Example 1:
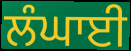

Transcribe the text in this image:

ਲੰਘਾਈ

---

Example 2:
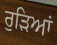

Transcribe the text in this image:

ਰੁੜਿਆਂ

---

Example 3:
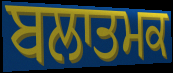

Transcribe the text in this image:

ਬਲਾਤਮਕ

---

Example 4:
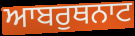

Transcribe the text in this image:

ਆਬਰੁਥਨਾਟ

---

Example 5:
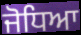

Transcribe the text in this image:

ਜੋਧਿਆ